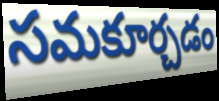
సమకూర్చడం